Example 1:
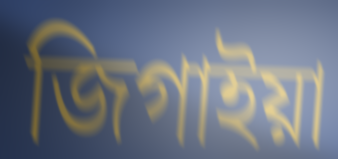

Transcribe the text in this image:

জিগাইয়া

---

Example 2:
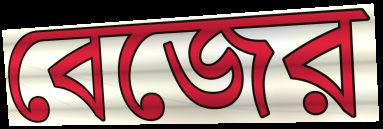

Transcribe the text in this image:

বেজের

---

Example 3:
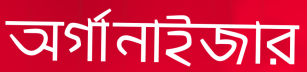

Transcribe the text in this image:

অর্গানাইজার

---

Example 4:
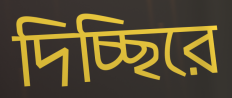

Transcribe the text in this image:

দিচ্ছিরে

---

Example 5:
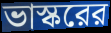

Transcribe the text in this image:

ভাস্করের